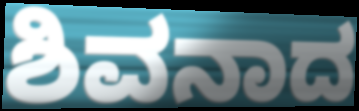
ಶಿವನಾದ